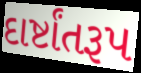
દાર્ષ્ટાંતરૂપ